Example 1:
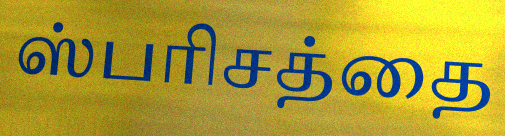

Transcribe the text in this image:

ஸ்பரிசத்தை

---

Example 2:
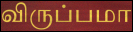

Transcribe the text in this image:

விருப்பமா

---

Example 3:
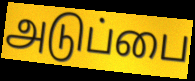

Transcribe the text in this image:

அடுப்பை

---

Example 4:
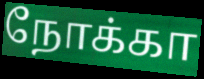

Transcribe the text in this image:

நோக்கா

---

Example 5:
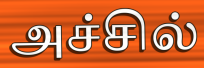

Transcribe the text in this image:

அச்சில்